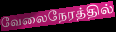
வேலைநேரத்தில்